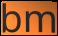
bm